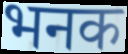
भनक